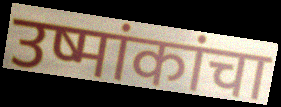
उष्मांकांचा